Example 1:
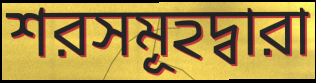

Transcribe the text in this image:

শরসমূহদ্বারা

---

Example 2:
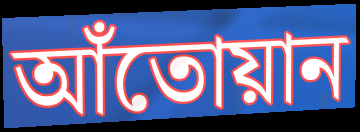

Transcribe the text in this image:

আঁতোয়ান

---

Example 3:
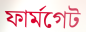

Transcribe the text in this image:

ফার্মগেট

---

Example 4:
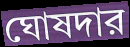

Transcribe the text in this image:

ঘোষদার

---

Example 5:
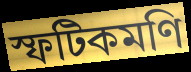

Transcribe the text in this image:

স্ফটিকমণি